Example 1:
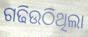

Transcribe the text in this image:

ଗଢିଉଠିଥିଲା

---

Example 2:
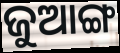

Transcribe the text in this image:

ଜୁଆଙ୍ଗ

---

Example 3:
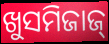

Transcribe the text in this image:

ଖୁସମିଜାଜ୍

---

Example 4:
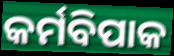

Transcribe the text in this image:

କର୍ମବିପାକ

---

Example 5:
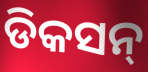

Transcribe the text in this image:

ଡିକସନ୍